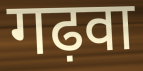
गढ़वा